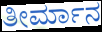
ತೀರ್ಮಾನ